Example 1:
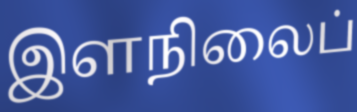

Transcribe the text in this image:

இளநிலைப்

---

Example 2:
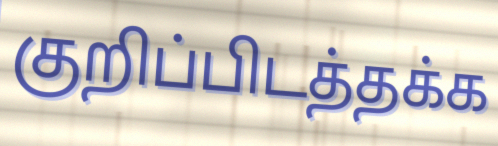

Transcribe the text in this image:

குறிப்பிடத்தக்க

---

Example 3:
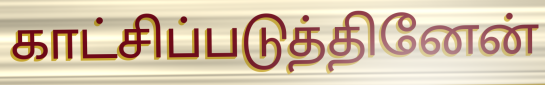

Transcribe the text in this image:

காட்சிப்படுத்தினேன்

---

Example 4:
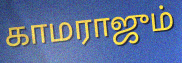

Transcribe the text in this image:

காமராஜும்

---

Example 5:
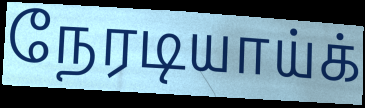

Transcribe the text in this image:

நேரடியாய்க்